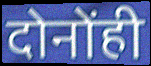
दोनोंही